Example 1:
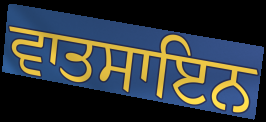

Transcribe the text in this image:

ਵਾਤਸਾਇਨ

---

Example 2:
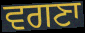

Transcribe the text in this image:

ਵਗਣਾ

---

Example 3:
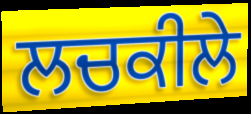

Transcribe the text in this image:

ਲਚਕੀਲੇ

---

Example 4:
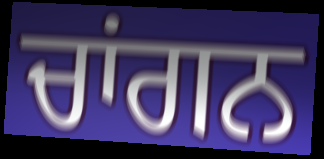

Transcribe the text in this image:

ਚਾਂਗਨ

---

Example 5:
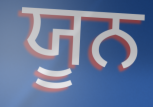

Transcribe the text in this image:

ਯੂਨ